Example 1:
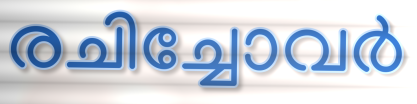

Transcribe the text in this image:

രചിച്ചോവർ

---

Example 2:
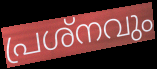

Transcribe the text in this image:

പ്രശ്നവും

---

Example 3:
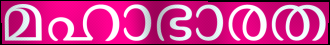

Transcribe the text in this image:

മഹാഭാരത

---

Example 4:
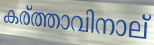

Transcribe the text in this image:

കര്ത്താവിനാല്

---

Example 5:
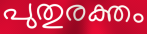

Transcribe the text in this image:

പുതുരക്തം